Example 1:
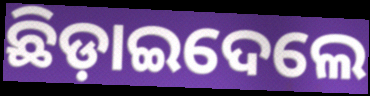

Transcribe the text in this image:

ଛିଡ଼ାଇଦେଲେ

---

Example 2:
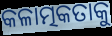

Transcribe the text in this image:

କଳାତ୍ମକତାକୁ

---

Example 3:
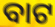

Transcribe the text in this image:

ବାଟ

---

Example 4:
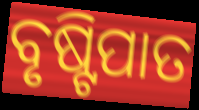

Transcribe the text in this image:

ବୃଷ୍ଟିପାତ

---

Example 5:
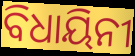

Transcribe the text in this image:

ବିଧାୟିନୀ